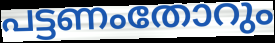
പട്ടണംതോറും